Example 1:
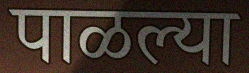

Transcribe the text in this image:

पाळल्या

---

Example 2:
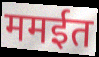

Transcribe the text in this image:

ममईत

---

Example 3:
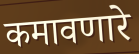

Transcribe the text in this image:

कमावणारे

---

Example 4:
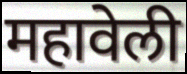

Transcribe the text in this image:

महावेली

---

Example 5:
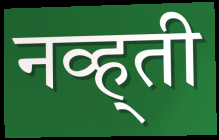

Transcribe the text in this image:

नव्ह्ती